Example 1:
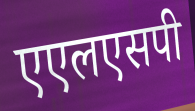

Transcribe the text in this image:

एएलएसपी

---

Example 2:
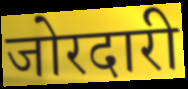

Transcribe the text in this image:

जोरदारी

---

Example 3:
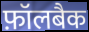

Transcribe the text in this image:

फ़ॉलबैक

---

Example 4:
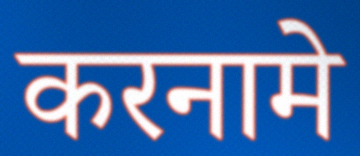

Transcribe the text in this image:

करनामे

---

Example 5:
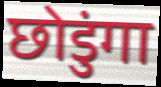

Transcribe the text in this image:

छोडुंगा